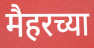
मैहरच्या